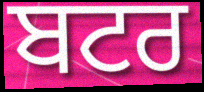
ਬਟਰ